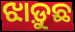
ଝାଡ଼ୁଛ